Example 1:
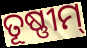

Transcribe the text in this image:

ତୂଷ୍ଣୀମ୍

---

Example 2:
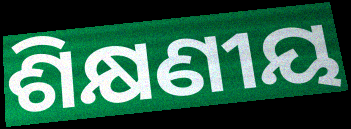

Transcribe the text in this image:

ଶିକ୍ଷଣୀୟ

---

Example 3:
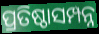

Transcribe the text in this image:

ପ୍ରତିଷ୍ଠାସମ୍ପନ୍ନ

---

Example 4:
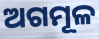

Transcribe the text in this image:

ଅଗମୂଳ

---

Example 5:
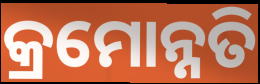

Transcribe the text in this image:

କ୍ରମୋନ୍ନତି